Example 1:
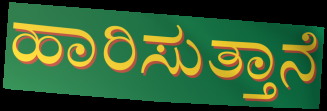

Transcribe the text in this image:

ಹಾರಿಸುತ್ತಾನೆ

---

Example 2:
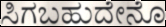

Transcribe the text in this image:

ಸಿಗಬಹುದೇನೊ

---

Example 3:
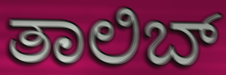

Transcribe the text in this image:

ತಾಲಿಬ್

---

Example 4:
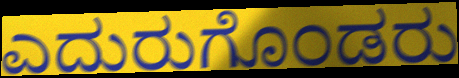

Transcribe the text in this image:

ಎದುರುಗೊಂಡರು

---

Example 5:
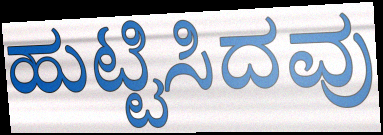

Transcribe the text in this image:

ಹುಟ್ಟಿಸಿದವು